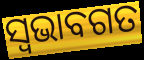
ସ୍ୱଭାବଗତ